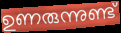
ഉണരുന്നുണ്ട്